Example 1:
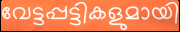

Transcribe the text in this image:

വേട്ടപ്പട്ടികളുമായി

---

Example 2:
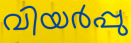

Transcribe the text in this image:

വിയർപ്പു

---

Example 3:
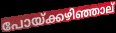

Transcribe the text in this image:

പോയ്ക്കഴിഞ്ഞാല്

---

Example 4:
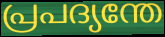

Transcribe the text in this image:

പ്രപദ്യന്തേ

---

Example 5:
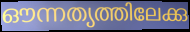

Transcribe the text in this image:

ഔന്നത്യത്തിലേക്കു